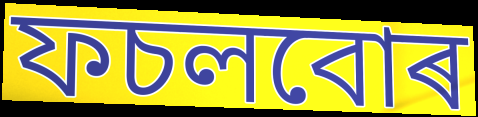
ফচলবোৰ